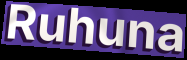
Ruhuna